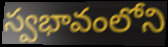
స్వభావంలోని